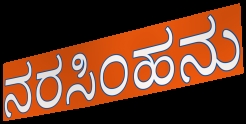
ನರಸಿಂಹನು